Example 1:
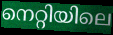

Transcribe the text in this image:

നെറ്റിയിലെ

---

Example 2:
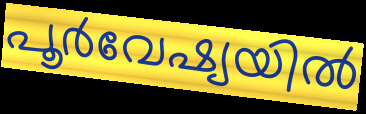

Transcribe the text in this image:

പൂർവേഷ്യയിൽ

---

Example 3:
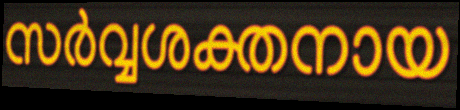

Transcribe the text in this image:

സർവ്വശക്തനായ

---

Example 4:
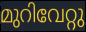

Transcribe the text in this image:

മുറിവേറ്റു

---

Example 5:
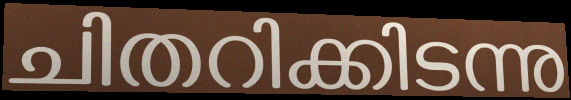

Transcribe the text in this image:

ചിതറിക്കിടന്നു